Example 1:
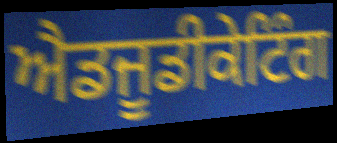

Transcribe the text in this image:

ਐਡਜੂਡੀਕੇਟਿੰਗ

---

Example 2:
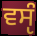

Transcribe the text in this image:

ਵਸੵੰ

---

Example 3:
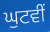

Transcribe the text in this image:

ਘੁਟਵੀਂ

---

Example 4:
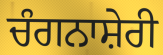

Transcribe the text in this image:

ਚੰਗਨਾਸ਼ੇਰੀ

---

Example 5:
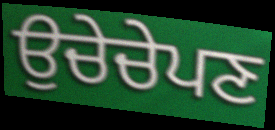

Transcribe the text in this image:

ਉਚੇਚੇਪਣ